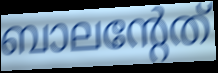
ബാലന്റേത്